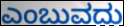
ಎಂಬುವದು